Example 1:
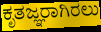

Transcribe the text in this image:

ಕೃತಜ್ಞರಾಗಿರಲು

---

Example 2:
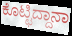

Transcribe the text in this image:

ಕೊಟ್ಟಿದ್ದಾನಾ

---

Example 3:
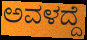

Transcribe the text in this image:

ಅವಳದ್ದೆ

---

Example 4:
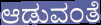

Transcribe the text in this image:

ಆಡುವಂತೆ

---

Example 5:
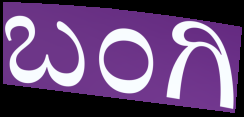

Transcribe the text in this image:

ಬಂಗಿ